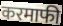
करमाफी